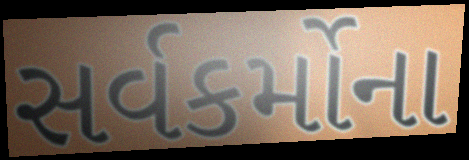
સર્વકર્મોના